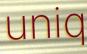
uniq